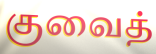
குவைத்